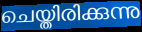
ചെയ്തിരിക്കുന്നു